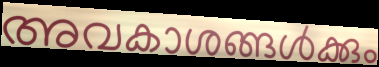
അവകാശങ്ങൾക്കും